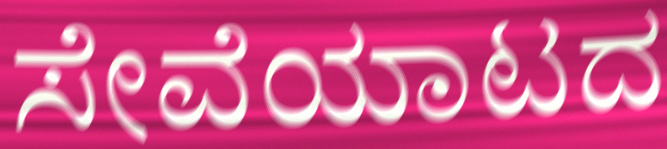
ಸೇವೆಯಾಟದ